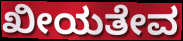
ಖೀಯತೇವ